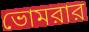
ভোমরার